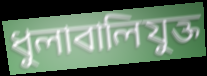
ধুলাবালিযুক্ত